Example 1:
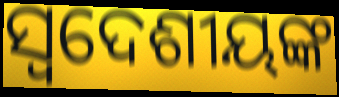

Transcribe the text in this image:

ସ୍ଵଦେଶୀୟଙ୍କ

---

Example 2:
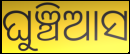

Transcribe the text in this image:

ଘୁଞ୍ଚିଆସ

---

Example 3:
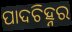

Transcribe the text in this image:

ପାଦଚିହ୍ନର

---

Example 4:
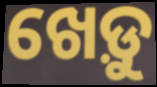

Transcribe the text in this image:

ଖେଡ଼ୁ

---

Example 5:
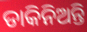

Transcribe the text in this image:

ଡାକିନିଅନ୍ତି